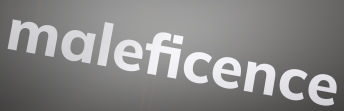
maleficence